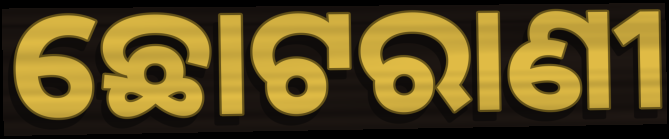
ଛୋଟରାଣୀ